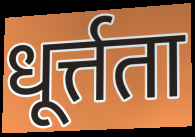
धूर्त्तता